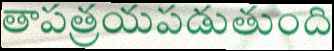
తాపత్రయపడుతుంది